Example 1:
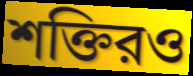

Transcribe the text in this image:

শক্তিরও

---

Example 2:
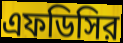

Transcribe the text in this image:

এফডিসির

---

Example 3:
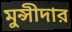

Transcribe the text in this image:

মুন্সীদার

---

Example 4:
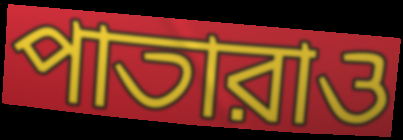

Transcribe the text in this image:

পাতারাও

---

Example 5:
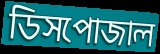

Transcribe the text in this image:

ডিসপোজাল